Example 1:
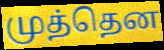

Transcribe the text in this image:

முத்தென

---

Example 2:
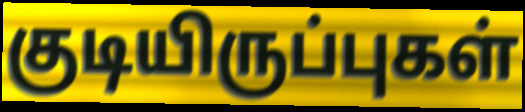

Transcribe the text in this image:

குடியிருப்புகள்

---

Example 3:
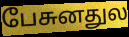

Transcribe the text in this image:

பேசுனதுல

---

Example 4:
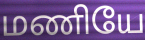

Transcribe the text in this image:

மணியே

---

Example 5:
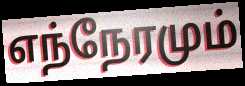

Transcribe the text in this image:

எந்நேரமும்